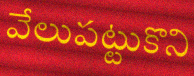
వేలుపట్టుకొని